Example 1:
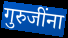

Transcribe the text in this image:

गुरुजींना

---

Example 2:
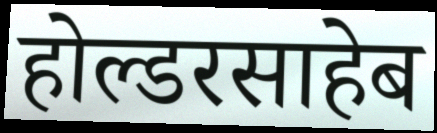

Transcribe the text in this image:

होल्डरसाहेब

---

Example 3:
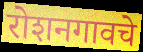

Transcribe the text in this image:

रोशनगावचे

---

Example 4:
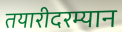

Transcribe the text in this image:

तयारीदरम्यान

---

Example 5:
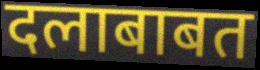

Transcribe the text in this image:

दलाबाबत